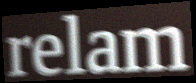
relam